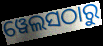
ୱେଲସଠାରୁ